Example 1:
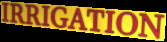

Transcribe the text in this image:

IRRIGATION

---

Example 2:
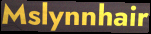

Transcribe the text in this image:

Mslynnhair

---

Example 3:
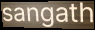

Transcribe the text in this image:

sangath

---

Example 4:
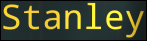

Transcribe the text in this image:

Stanley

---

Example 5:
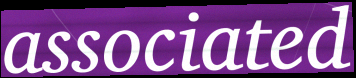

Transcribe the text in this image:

associated